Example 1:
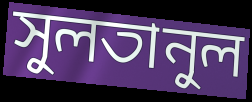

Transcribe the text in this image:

সুলতানুল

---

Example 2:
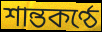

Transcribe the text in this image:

শান্তকণ্ঠে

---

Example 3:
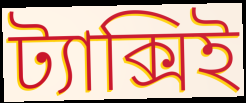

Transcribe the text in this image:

ট্যাক্সিই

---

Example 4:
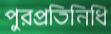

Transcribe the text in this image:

পুরপ্রতিনিধি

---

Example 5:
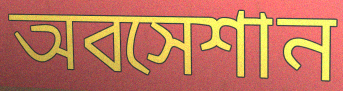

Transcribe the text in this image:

অবসেশান